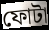
ফোটা